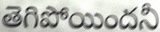
తెగిపోయిందనీ